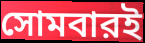
সোমবারই